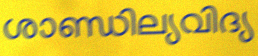
ശാണ്ഡില്യവിദ്യ